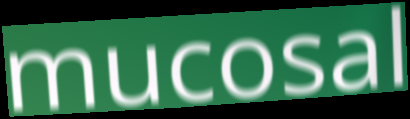
mucosal